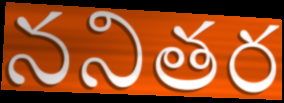
ననితర